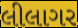
લીલાગર